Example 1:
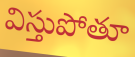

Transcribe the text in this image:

విస్తుపోతూ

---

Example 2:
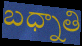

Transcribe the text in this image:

బధ్నాతి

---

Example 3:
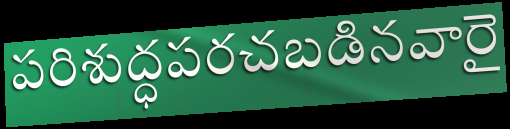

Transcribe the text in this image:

పరిశుద్ధపరచబడినవారై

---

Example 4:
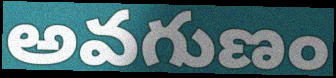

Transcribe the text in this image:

అవగుణం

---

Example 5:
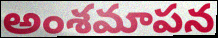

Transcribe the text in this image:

అంశమాపన